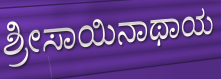
ಶ್ರೀಸಾಯಿನಾಥಾಯ